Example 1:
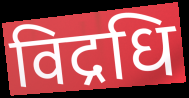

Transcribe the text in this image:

विद्रधि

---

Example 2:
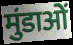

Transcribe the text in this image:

मुंडाओं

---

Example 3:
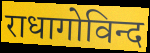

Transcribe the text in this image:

राधागोविन्द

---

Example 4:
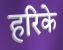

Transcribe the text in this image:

हरिके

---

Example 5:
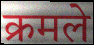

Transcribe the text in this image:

क्रमले